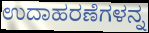
ಉದಾಹರಣೆಗಳನ್ನ